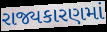
રાજ્યકારણમાં